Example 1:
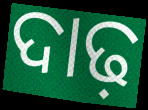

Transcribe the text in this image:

ଦାଢ଼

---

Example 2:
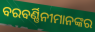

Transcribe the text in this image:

ବରବର୍ଣ୍ଣିନୀମାନଙ୍କର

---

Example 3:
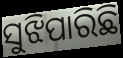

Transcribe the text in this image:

ସୁଝିପାରିଛି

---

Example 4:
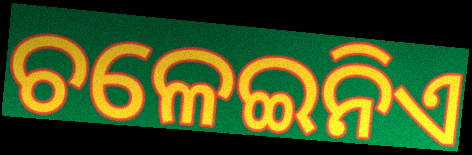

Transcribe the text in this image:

ଚଳେଇନିଏ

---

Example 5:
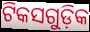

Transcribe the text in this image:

ଟିକସଗୁଡ଼ିକ